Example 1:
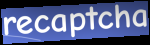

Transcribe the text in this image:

recaptcha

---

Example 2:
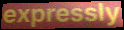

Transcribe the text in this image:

expressly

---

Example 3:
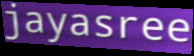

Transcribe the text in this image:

jayasree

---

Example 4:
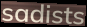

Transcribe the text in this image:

sadists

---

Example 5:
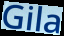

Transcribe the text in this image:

Gila